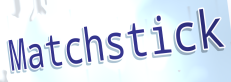
Matchstick